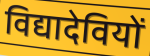
विद्यादेवियों